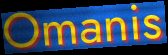
Omanis